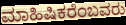
ಮಾಹಿಷಿಕರೆಂಬವರು